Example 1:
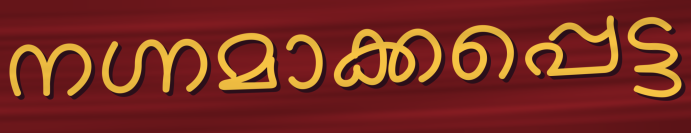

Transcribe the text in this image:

നഗ്നമാക്കപ്പെട്ട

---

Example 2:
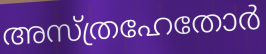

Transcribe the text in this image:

അസ്ത്രഹേതോർ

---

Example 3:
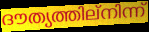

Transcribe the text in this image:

ദൗത്യത്തില്നിന്ന്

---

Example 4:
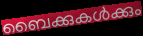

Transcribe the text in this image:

ബൈക്കുകൾക്കും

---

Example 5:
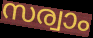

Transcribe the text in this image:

സര്വാം